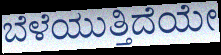
ಬೆಳೆಯುತ್ತಿದೆಯೇ